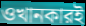
ওখানকারই